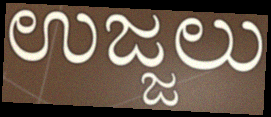
ಉಜ್ಜಲು